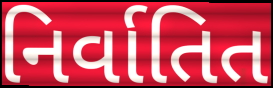
નિર્વાતિત